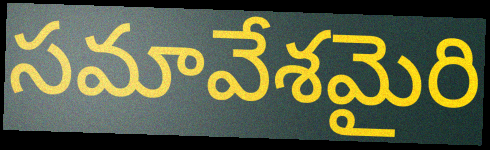
సమావేశమైరి